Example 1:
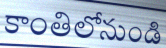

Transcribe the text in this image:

కాంతిలోనుండి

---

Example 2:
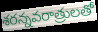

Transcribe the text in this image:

శరన్నవరాత్రులతో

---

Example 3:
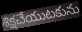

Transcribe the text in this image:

శిక్షచేయుటకును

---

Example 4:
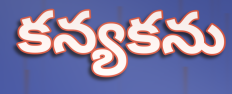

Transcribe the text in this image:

కన్యకను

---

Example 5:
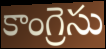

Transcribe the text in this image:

కాంగ్రెసు